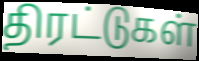
திரட்டுகள்